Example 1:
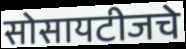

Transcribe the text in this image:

सोसायटीजचे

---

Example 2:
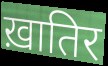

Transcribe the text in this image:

ख़ातिर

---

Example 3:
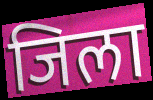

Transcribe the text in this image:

जिला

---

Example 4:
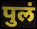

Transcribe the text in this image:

पुलं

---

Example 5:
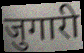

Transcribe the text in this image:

जुगारी